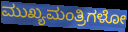
ಮುಖ್ಯಮಂತ್ರಿಗಳೋ